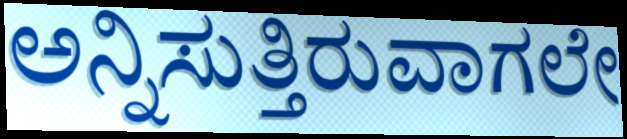
ಅನ್ನಿಸುತ್ತಿರುವಾಗಲೇ